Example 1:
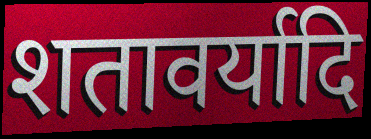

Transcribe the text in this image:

शतावर्यादि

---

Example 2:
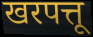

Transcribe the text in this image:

खरपत्तू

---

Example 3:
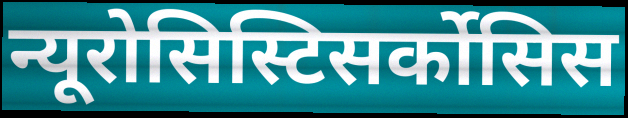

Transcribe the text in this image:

न्यूरोसिस्टिसर्कोसिस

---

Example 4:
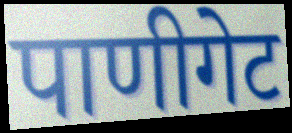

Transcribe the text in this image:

पाणीगेट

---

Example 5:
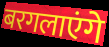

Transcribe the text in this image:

बरगलाएंगे